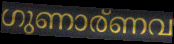
ഗുണാര്ണവ